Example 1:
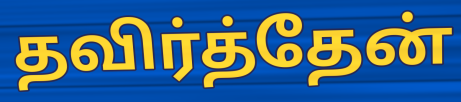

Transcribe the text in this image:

தவிர்த்தேன்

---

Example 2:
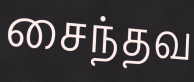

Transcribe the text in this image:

சைந்தவ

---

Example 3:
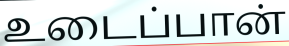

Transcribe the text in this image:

உடைப்பான்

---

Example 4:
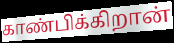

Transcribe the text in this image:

காண்பிக்கிறான்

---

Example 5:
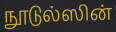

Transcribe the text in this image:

நூடுல்ஸின்